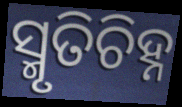
ସ୍ମୃତିଚିହ୍ନ